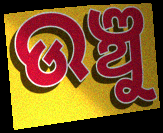
ଉଞ୍ଚୁ